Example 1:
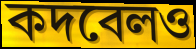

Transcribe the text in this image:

কদবেলও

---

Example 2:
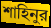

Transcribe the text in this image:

শাহিনুর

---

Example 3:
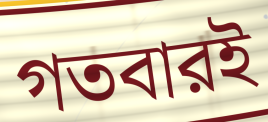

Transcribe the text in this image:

গতবারই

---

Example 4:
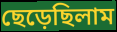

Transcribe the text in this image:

ছেড়েছিলাম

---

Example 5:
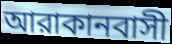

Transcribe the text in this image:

আরাকানবাসী